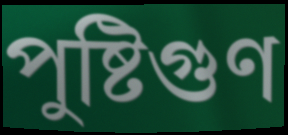
পুষ্টিগুণ